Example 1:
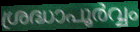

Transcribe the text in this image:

ശ്രദ്ധാപൂർവ്വം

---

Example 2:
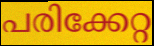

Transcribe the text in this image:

പരിക്കേറ്റ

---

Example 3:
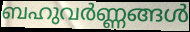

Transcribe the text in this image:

ബഹുവർണ്ണങ്ങൾ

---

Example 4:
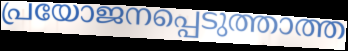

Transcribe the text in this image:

പ്രയോജനപ്പെടുത്താത്ത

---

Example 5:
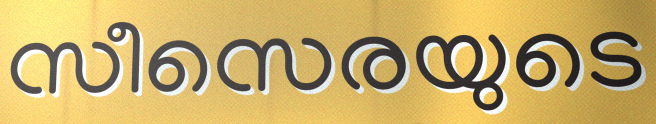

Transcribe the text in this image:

സീസെരയുടെ